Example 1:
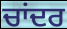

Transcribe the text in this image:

ਚਾਂਦਰ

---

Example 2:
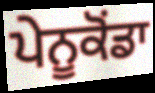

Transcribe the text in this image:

ਪੇਨੂਕੋਂਡਾ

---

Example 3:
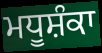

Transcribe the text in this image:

ਮਧੂਸ਼ੰਕਾ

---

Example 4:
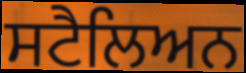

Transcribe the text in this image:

ਸਟੈਲਿਅਨ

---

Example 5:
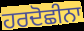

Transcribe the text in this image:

ਹਰਦੋਛੀਨਾ